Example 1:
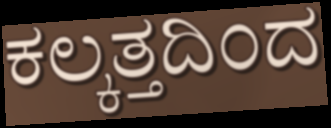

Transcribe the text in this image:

ಕಲ್ಕತ್ತದಿಂದ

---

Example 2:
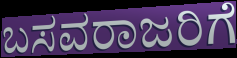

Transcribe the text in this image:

ಬಸವರಾಜರಿಗೆ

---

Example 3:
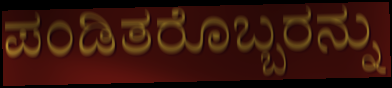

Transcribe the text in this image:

ಪಂಡಿತರೊಬ್ಬರನ್ನು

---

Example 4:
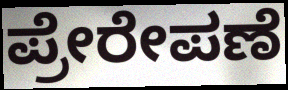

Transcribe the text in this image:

ಪ್ರೇರೇಪಣೆ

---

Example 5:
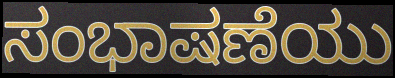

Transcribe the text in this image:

ಸಂಭಾಷಣೆಯು